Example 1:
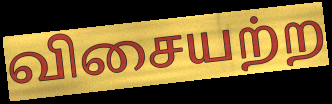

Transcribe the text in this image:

விசையற்ற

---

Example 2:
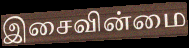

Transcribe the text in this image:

இசைவின்மை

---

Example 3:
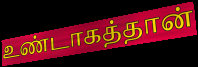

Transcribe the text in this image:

உண்டாகத்தான்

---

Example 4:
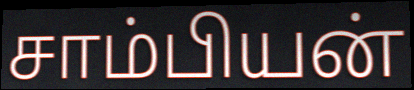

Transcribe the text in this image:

சாம்பியன்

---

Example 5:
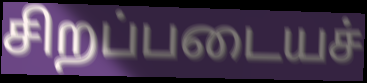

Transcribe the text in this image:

சிறப்படையச்